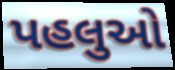
પહલુઓ